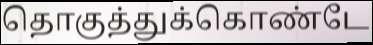
தொகுத்துக்கொண்டே